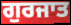
ਗੁਰਜਾਤ